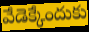
వేడెక్కేందుకు